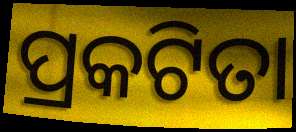
ପ୍ରକଟିତା